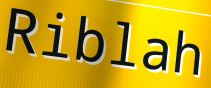
Riblah